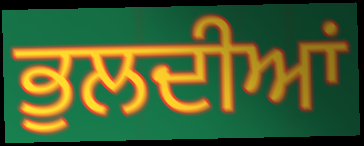
ਭੁਲਦੀਆਂ